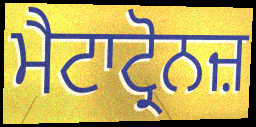
ਮੈਟਾਟ੍ਰੋਨਜ਼